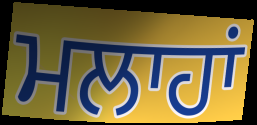
ਮਲਾਹਾਂ